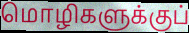
மொழிகளுக்குப்